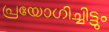
പ്രയോഗിച്ചിട്ടും